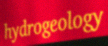
hydrogeology